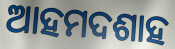
ଆହମଦଶାହ